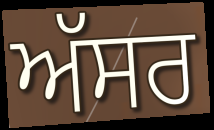
ਅੱਸਰ